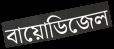
বায়োডিজেল